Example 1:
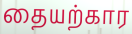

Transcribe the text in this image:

தையற்கார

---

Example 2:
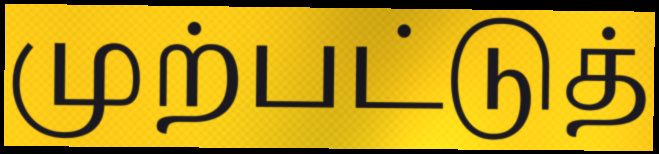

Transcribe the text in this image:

முற்பட்டுத்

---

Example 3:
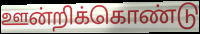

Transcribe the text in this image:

ஊன்றிக்கொண்டு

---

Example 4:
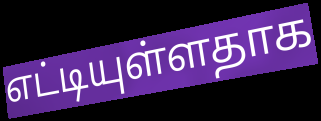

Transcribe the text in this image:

எட்டியுள்ளதாக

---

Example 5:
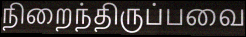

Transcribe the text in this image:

நிறைந்திருப்பவை